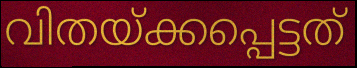
വിതയ്ക്കപ്പെട്ടത്